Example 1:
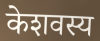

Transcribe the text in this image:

केशवस्य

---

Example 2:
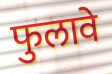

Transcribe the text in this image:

फुलावे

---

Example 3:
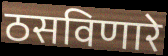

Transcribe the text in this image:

ठसविणारे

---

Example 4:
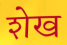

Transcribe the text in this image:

शेख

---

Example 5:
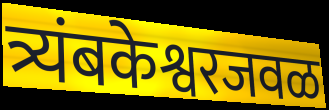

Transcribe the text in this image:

त्र्यंबकेश्वरजवळ